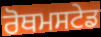
ਰੋਥਮਸਟੇਡ